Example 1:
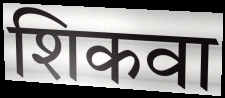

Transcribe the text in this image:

शिकवा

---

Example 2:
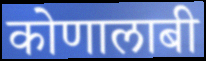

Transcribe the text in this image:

कोणालाबी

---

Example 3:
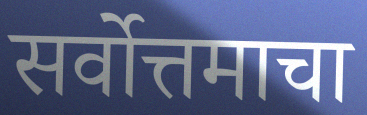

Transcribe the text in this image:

सर्वोत्तमाचा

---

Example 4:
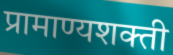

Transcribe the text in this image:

प्रामाण्यशक्ती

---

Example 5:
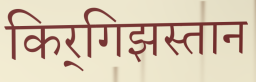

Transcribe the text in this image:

किर्गिझस्तान